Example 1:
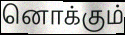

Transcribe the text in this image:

னொக்கும்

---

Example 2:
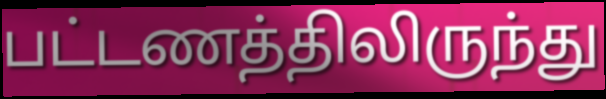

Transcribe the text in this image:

பட்டணத்திலிருந்து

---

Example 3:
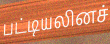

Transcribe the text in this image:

பட்டியலினச்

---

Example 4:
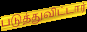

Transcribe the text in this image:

படுத்துவிட்டார்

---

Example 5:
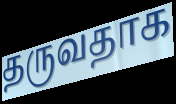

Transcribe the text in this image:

தருவதாக